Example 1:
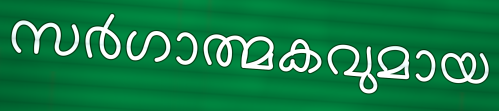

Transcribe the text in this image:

സർഗാത്മകവുമായ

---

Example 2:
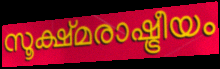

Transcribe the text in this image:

സൂക്ഷ്മരാഷ്ട്രീയം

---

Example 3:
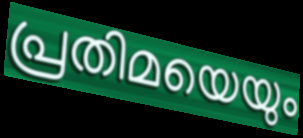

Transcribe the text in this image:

പ്രതിമയെയും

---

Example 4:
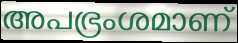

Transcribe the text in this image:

അപഭ്രംശമാണ്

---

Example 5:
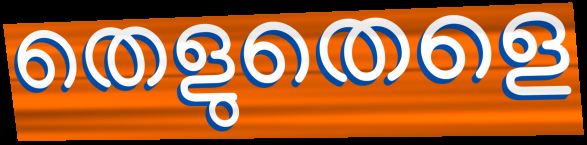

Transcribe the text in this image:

തെളുതെളെ